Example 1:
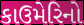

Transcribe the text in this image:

કાઉમેરિનો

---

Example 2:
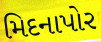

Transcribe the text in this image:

મિદનાપોર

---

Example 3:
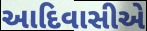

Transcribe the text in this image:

આદિવાસીએ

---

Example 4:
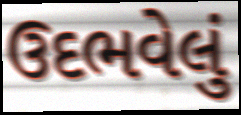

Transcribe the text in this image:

ઉદભવેલું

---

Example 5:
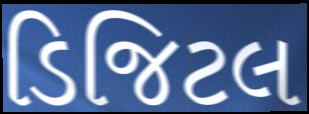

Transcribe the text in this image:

ડિજિટલ